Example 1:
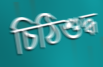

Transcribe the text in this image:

চিঠিশুদ্ধ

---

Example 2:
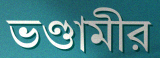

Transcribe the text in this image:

ভণ্ডামীর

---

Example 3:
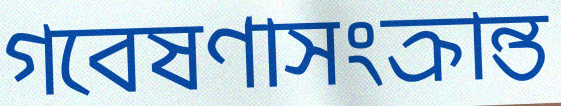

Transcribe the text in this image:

গবেষণাসংক্রান্ত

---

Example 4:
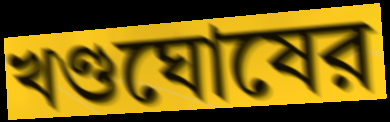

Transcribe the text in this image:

খণ্ডঘোষের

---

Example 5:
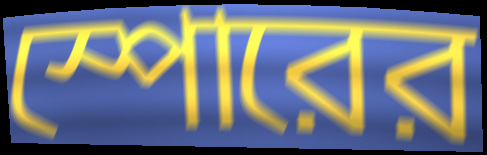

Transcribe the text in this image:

স্পোরের